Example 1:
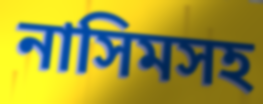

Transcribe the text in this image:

নাসিমসহ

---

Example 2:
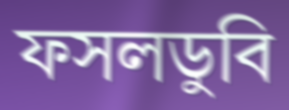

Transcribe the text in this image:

ফসলডুবি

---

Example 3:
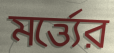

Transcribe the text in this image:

মর্ত্ত্যের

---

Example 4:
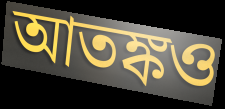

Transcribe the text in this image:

আতঙ্কও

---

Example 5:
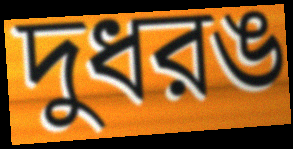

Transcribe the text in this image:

দুধরঙ